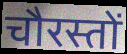
चौरस्तों